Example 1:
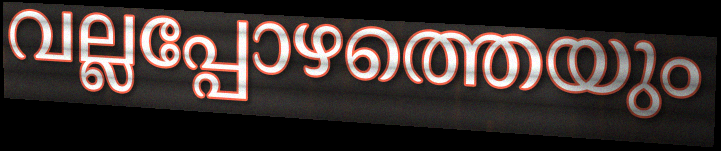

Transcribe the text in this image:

വല്ലപ്പോഴത്തെയും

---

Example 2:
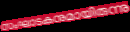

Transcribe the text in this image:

സംഘാടകനുമായിരുന്നു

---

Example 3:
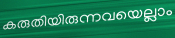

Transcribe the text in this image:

കരുതിയിരുന്നവയെല്ലാം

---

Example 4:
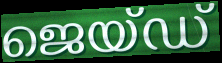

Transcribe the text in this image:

ജെയ്ഡ്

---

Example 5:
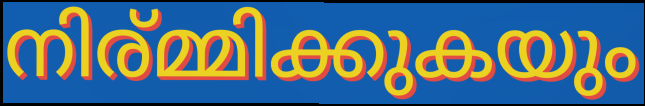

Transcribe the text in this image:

നിര്മ്മിക്കുകയും